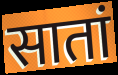
सातां